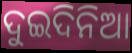
ଦୁଇଦିନିଆ